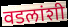
वडलांशी